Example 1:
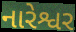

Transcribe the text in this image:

નારેશ્વર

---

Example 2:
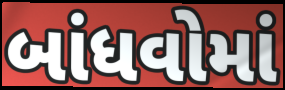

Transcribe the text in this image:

બાંધવોમાં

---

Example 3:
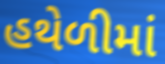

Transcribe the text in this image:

હથેળીમાં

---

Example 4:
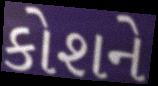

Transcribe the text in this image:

કોશને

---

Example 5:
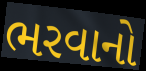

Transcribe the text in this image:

ભરવાનો